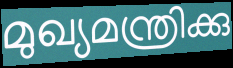
മുഖ്യമന്ത്രിക്കു